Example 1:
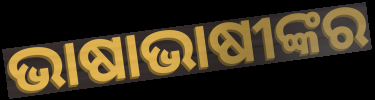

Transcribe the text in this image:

ଭାଷାଭାଷୀଙ୍କର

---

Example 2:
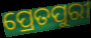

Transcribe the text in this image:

ପ୍ରେତପୁରୀ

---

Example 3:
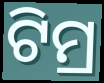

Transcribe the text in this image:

ଟିମ୍ର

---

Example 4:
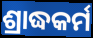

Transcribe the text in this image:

ଶ୍ରାଦ୍ଧକର୍ମ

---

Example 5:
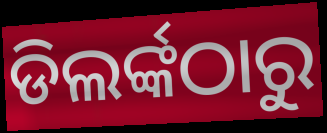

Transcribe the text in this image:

ଡିଲର୍ଙ୍କଠାରୁ